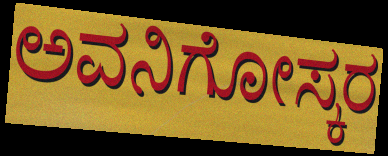
ಅವನಿಗೋಸ್ಕರ